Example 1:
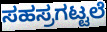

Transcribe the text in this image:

ಸಹಸ್ರಗಟ್ಟಲೆ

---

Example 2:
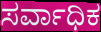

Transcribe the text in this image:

ಸರ್ವಾಧಿಕ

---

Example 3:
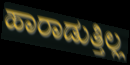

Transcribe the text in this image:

ಹಾರಾಡುತ್ತಿಲ್ಲ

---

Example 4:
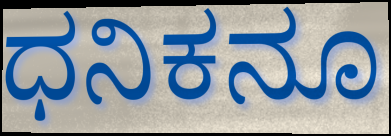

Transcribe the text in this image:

ಧನಿಕನೂ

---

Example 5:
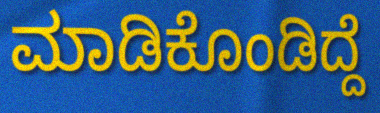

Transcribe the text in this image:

ಮಾಡಿಕೊಂಡಿದ್ದೆ